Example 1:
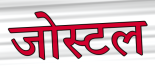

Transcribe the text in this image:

जोस्टल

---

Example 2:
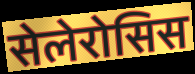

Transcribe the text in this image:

सेलेरोसिस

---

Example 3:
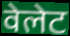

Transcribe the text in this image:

वेलेट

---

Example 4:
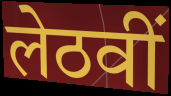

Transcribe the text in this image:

लेठवीं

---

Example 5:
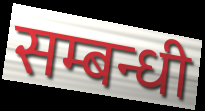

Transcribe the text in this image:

सम्‍बन्‍धी